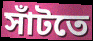
সাঁটতে